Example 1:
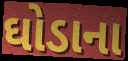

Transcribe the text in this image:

ઘોડાના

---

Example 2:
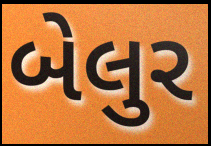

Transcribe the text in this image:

બેલુર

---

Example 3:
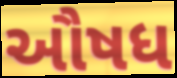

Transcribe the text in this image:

ઔષધ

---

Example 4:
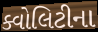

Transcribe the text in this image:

ક્વોલિટીના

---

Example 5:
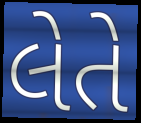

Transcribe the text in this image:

લેતે